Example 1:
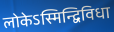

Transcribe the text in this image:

लोकेऽस्मिन्द्विविधा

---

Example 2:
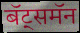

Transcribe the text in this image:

बॅट्समॅन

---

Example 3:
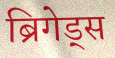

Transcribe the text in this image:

ब्रिगेड्स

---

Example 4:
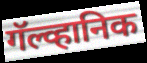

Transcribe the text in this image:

गॅल्व्हानिक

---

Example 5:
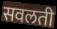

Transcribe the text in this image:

सवलती